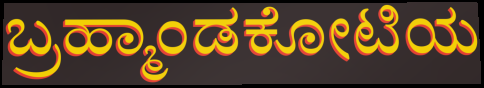
ಬ್ರಹ್ಮಾಂಡಕೋಟಿಯ